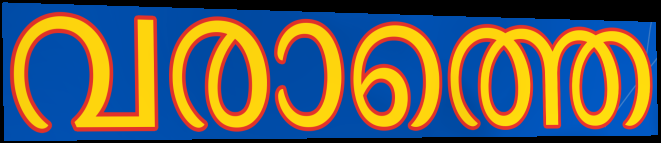
വരാത്തെ